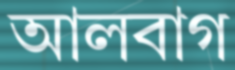
আলবাগ